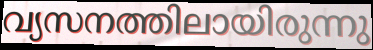
വ്യസനത്തിലായിരുന്നു